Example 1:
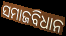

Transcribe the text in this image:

ସମାଜବିଧାନ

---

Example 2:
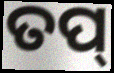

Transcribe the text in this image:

ତପ୍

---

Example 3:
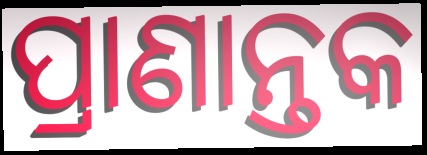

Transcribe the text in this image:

ପ୍ରାଣାନ୍ତକ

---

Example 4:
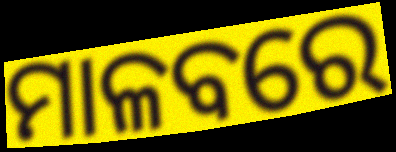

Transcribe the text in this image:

ମାଳବରେ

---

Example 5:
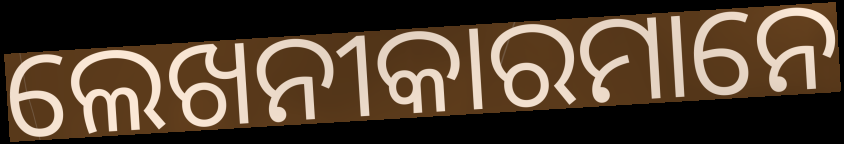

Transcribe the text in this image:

ଲେଖନୀକାରମାନେ